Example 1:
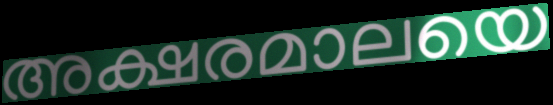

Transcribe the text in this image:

അക്ഷരമാലയെ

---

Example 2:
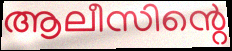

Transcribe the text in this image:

ആലീസിന്റെ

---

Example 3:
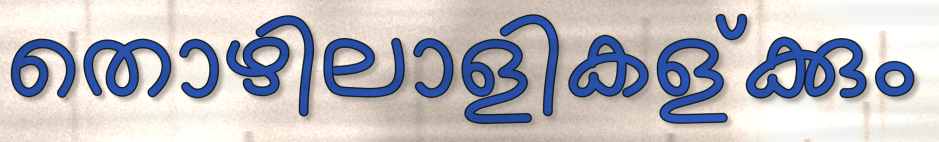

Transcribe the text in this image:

തൊഴിലാളികള്ക്കും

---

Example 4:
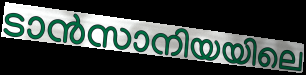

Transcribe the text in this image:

ടാൻസാനിയയിലെ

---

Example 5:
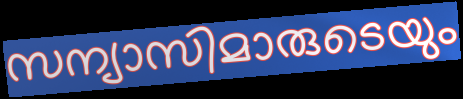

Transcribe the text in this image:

സന്യാസിമാരുടെയും